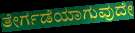
ತೇರ್ಗಡೆಯಾಗುವುದೇ